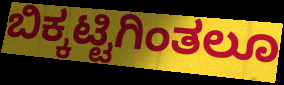
ಬಿಕ್ಕಟ್ಟಿಗಿಂತಲೂ